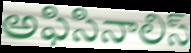
అఫిసినాలిస్